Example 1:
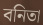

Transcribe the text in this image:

বনিতা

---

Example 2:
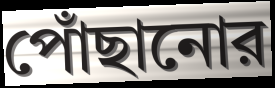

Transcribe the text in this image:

পোঁছানোর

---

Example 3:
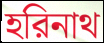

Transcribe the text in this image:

হরিনাথ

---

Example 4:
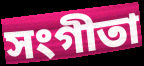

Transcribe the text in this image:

সংগীতা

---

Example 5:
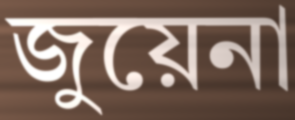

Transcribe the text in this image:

জুয়েনা